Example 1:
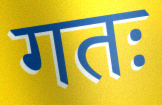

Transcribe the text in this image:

गतः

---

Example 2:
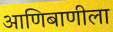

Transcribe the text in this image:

आणिबाणीला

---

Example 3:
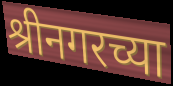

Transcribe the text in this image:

श्रीनगरच्या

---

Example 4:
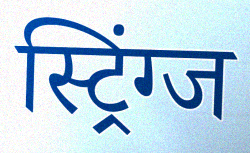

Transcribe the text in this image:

स्ट्रिंग्ज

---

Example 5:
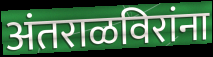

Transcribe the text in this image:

अंतराळविरांना